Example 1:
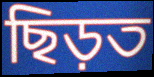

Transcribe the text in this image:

ছিড়ত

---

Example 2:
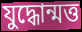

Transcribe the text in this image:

যুদ্ধোন্মত্ত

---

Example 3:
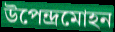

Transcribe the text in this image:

উপেন্দ্রমোহন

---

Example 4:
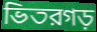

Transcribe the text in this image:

ভিতরগড়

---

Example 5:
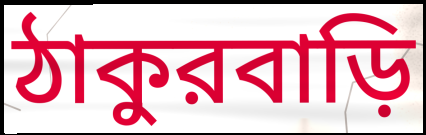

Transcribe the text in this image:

ঠাকুরবাড়ি